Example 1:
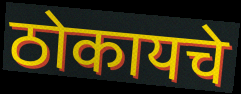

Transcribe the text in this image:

ठोकायचे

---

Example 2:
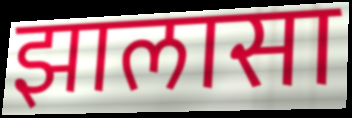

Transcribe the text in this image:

झालासा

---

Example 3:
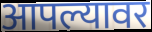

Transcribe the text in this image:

आपल्यावर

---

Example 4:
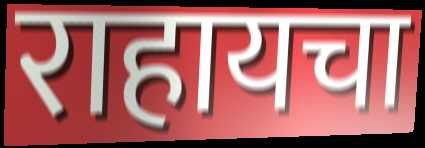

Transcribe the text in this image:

राहायचा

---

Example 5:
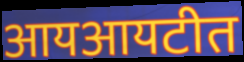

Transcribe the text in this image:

आयआयटीत